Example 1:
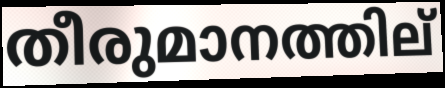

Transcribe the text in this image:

തീരുമാനത്തില്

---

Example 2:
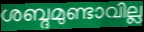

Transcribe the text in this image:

ശബ്ദമുണ്ടാവില്ല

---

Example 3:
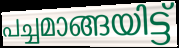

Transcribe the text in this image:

പച്ചമാങ്ങയിട്ട്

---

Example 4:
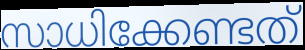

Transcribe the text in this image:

സാധിക്കേണ്ടത്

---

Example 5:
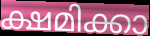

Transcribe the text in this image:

ക്ഷമിക്കാ